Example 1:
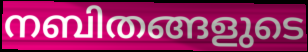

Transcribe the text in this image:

നബിതങ്ങളുടെ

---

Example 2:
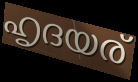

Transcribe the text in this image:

ഹൃദയര്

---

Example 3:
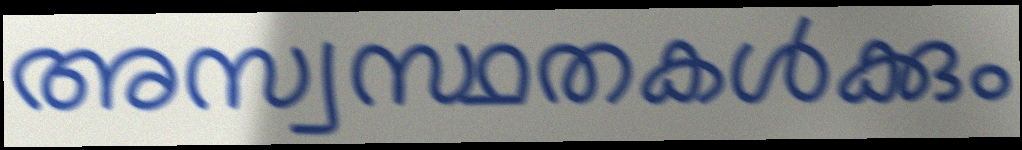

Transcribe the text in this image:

അസ്വസ്ഥതകൾക്കും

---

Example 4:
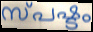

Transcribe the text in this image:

സ്പഷ്ടം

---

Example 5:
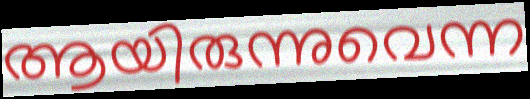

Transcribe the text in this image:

ആയിരുന്നുവെന്ന